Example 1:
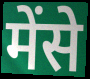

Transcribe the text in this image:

मेंसे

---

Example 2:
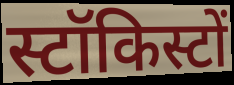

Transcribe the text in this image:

स्टॉकिस्टों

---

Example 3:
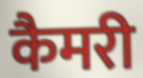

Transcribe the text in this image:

कैमरी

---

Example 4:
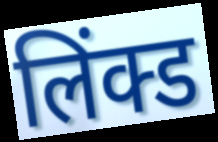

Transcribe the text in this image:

लिंक्ड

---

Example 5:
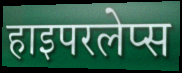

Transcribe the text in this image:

हाइपरलेप्स